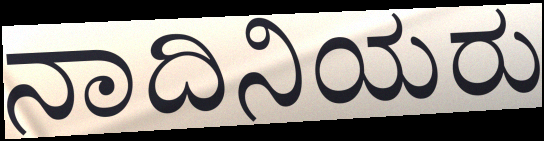
ನಾದಿನಿಯರು